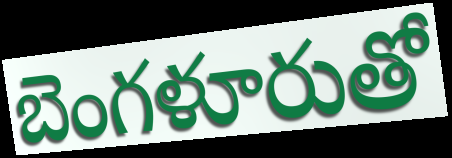
బెంగళూరుతో